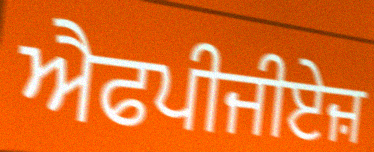
ਐਫਪੀਜੀਏਜ਼